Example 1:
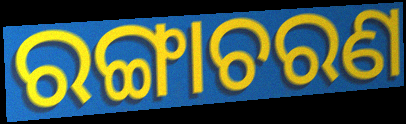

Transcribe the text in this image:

ରଙ୍ଗାଚରଣ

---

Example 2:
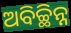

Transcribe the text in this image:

ଅବିଚ୍ଛିନ୍ନ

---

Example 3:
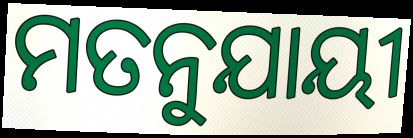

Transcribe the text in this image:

ମତନୁଯାୟୀ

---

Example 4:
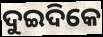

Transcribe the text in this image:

ଦୁଇଦିକେ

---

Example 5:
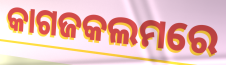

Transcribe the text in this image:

କାଗଜକଲମରେ